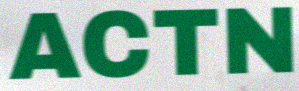
ACTN